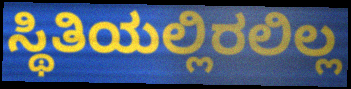
ಸ್ಥಿತಿಯಲ್ಲಿರಲಿಲ್ಲ